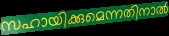
സഹായിക്കുമെന്നതിനാൽ